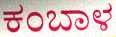
ಕಂಬಾಳ